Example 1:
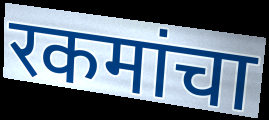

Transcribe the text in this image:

रकमांचा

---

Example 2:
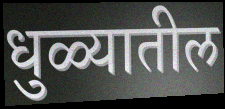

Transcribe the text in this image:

धुळ्यातील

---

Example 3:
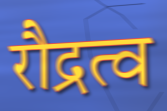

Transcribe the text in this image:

रौद्रत्व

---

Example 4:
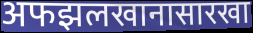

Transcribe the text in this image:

अफझलखानासारखा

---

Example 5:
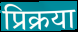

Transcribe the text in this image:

प्रिक्रया